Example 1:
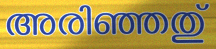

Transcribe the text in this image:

അരിഞ്ഞതു്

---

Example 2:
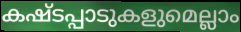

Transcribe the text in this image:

കഷ്ടപ്പാടുകളുമെല്ലാം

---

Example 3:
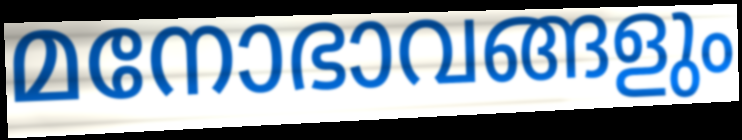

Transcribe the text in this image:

മനോഭാവങ്ങളും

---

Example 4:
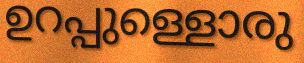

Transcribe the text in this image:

ഉറപ്പുള്ളൊരു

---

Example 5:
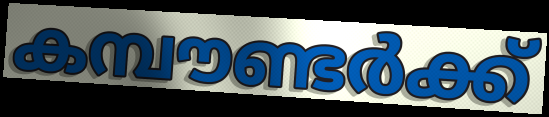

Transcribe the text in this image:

കമ്പൗണ്ടർക്ക്